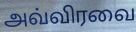
அவ்விரவை